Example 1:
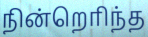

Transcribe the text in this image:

நின்றெரிந்த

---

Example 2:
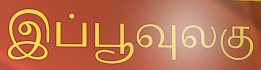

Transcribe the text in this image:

இப்பூவுலகு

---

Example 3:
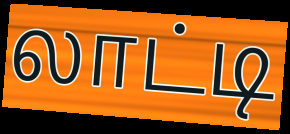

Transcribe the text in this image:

லாட்டி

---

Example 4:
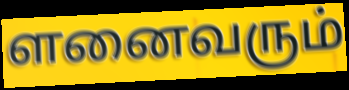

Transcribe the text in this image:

ளனைவரும்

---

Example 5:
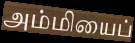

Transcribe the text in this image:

அம்மியைப்